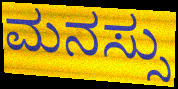
ಮನಸ್ಸು